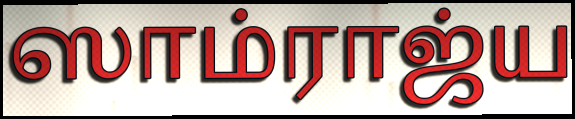
ஸாம்ராஜ்ய